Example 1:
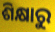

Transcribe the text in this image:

ଶିକ୍ଷାରୁ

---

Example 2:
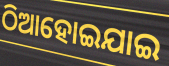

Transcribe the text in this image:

ଠିଆହୋଇଯାଇ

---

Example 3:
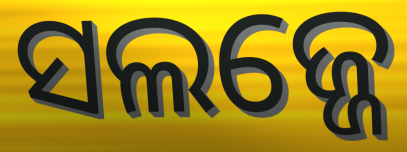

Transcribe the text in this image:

ସଲଜ୍ଜେ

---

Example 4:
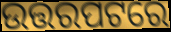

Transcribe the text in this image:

ଉତ୍ତରପଟରେ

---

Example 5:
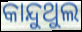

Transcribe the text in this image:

କାନ୍ଦୁଥୁଲ